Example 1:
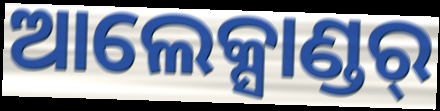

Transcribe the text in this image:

ଆଲେକ୍ସାଣ୍ଡର୍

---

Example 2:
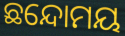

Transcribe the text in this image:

ଛନ୍ଦୋମୟ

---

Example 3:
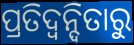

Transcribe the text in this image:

ପ୍ରତିଦ୍ୱନ୍ଦିତାରୁ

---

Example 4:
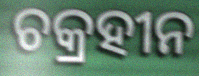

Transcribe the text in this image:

ଚକ୍ରହୀନ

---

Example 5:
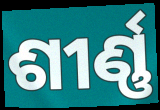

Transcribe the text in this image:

ଶୀର୍ଣ୍ଣ